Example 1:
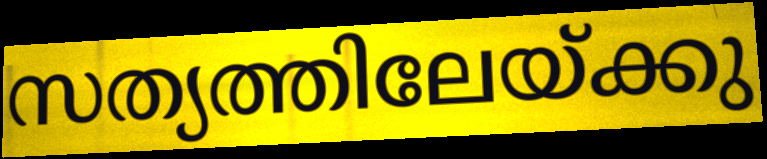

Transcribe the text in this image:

സത്യത്തിലേയ്ക്കു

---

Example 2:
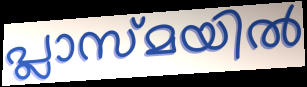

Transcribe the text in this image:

പ്ലാസ്മയിൽ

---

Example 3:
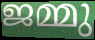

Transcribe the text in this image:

ജമ്മു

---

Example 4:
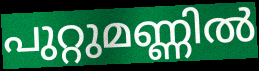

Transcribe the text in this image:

പുറ്റുമണ്ണിൽ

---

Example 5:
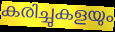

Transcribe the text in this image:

കരിച്ചുകളയും